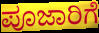
ಪೂಜಾರಿಗೆ